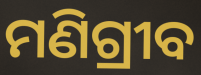
ମଣିଗ୍ରୀବ